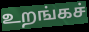
உறங்கச்